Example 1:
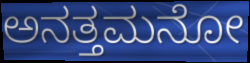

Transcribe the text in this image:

ಅನತ್ತಮನೋ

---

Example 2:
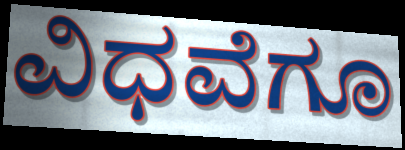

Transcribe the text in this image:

ವಿಧವೆಗೂ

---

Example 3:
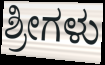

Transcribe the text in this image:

ಶ್ರೀಗಳು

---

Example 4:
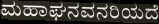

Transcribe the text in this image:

ಮಹಾಘನವನರಿಯದೆ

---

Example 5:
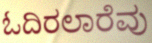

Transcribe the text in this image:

ಓದಿರಲಾರೆವು